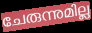
ചേരുന്നുമില്ല